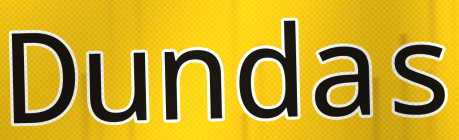
Dundas